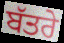
ਬੱਤਰੇ